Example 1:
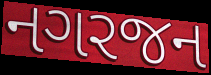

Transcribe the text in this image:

નગરજન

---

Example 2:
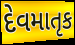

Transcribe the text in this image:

દેવમાતૃક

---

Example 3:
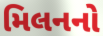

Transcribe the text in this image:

મિલનનો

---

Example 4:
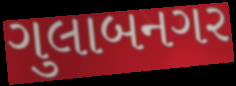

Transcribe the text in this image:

ગુલાબનગર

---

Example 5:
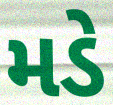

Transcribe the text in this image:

મડે